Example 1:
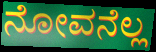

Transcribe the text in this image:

ನೋವನೆಲ್ಲ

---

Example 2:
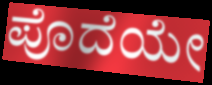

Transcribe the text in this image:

ಪೊದೆಯೇ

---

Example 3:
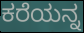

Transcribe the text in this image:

ಕರೆಯನ್ನ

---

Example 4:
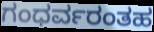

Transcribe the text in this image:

ಗಂಧರ್ವರಂತಹ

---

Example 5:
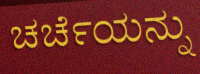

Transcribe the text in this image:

ಚರ್ಚೆಯನ್ನು